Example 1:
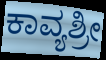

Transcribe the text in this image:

ಕಾವ್ಯಶ್ರೀ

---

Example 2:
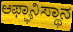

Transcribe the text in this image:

ಆಫ್ಘಾನಿಸ್ಥಾನ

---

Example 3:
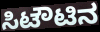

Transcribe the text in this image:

ಸಿಟೌಟಿನ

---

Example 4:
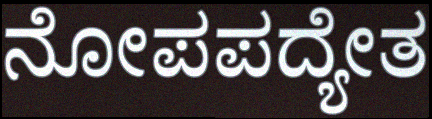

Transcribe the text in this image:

ನೋಪಪದ್ಯೇತ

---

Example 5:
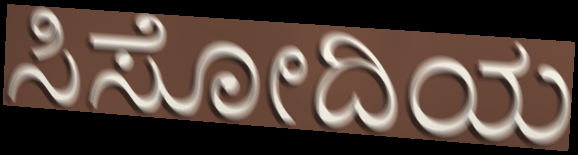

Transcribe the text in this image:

ಸಿಸೋದಿಯ